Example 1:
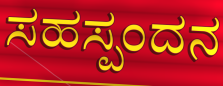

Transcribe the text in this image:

ಸಹಸ್ಪಂದನ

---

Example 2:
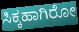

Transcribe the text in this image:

ಸಿಕ್ಕಹಾಗಿರೋ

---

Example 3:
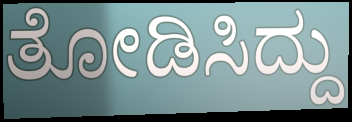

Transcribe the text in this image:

ತೋಡಿಸಿದ್ದು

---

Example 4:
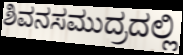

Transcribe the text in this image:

ಶಿವನಸಮುದ್ರದಲ್ಲಿ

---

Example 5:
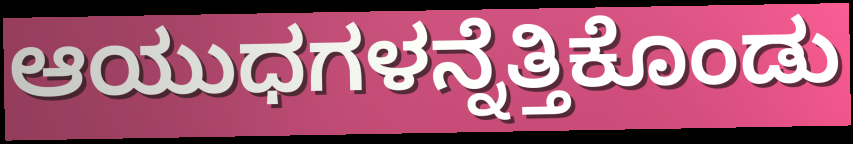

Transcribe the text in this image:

ಆಯುಧಗಳನ್ನೆತ್ತಿಕೊಂಡು